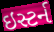
ઇસ્ટર્ન